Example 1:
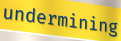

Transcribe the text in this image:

undermining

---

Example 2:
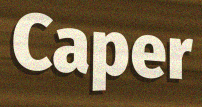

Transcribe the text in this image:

Caper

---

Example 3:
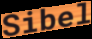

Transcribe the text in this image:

Sibel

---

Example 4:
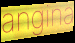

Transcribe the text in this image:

angina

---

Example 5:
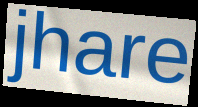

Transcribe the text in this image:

jhare